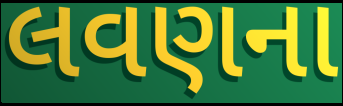
લવણના